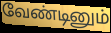
வேண்டினும்